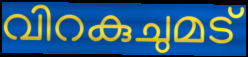
വിറകുചുമട്